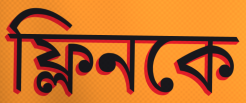
ফ্লিনকে